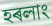
হৰলাং